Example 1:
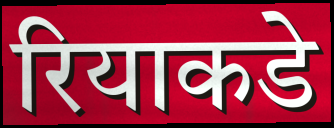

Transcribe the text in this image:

रियाकडे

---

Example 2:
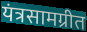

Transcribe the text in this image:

यंत्रसामग्रीत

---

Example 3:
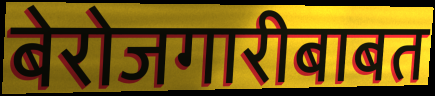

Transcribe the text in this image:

बेरोजगारीबाबत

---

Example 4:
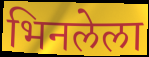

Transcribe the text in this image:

भिनलेला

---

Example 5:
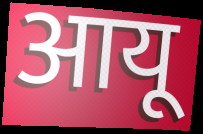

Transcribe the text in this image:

आयू